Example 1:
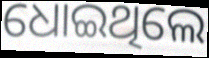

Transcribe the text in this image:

ଧୋଇଥିଲେ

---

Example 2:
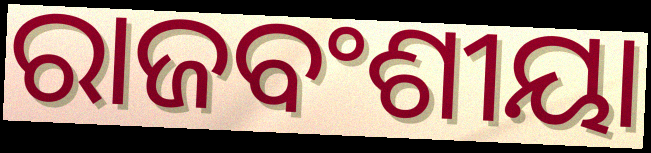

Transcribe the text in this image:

ରାଜବଂଶୀୟା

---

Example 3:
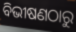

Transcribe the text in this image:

ବିଭୀଷଣଠାରୁ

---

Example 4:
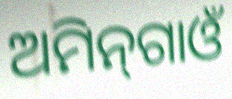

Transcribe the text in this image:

ଅମିନ୍‌ଗାଓଁ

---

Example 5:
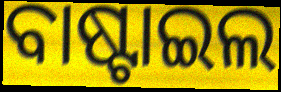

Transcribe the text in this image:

ବାଷ୍ଟାଇଲ